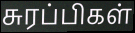
சுரப்பிகள்